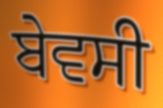
ਬੇਵਸੀ